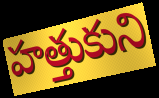
హత్తుకుని